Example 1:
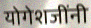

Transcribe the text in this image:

योगेशजींनी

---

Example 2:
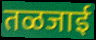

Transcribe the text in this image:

तळजाई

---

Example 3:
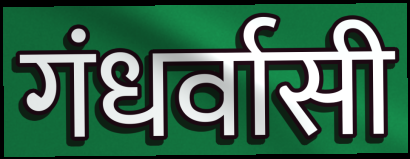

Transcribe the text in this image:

गंधर्वासी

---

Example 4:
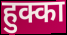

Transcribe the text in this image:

हुक्का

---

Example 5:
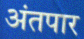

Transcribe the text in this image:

अंतपार